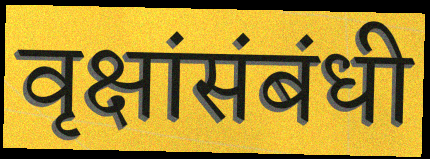
वृक्षांसंबंधी